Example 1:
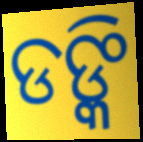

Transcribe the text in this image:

ଡଙ୍କି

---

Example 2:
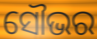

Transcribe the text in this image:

ସୌଭର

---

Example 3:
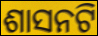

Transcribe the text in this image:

ଶାସନଟି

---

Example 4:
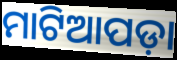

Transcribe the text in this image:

ମାଟିଆପଡ଼ା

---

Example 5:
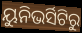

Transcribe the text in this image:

ୟୁନିଭର୍ସିଟିରୁ